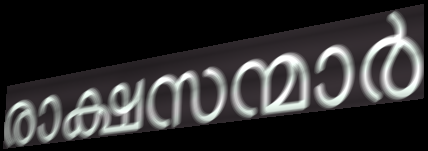
രാക്ഷസന്മാർ